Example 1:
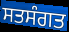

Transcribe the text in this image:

ਸਤਸੰਗਤ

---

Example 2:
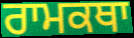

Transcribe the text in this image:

ਰਾਮਕਥਾ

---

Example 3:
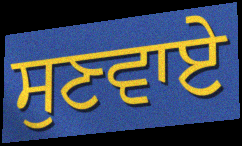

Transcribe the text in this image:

ਸੁਣਵਾਏ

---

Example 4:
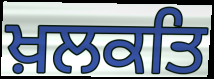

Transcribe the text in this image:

ਖ਼ਲਕਤਿ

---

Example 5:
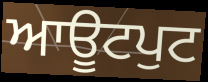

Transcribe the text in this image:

ਆਊਟਪੁਟ